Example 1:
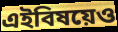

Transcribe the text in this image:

এইবিষয়েও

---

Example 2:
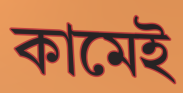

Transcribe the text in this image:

কামেই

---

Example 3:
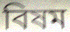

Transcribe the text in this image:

বিষম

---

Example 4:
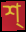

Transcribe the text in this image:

শ্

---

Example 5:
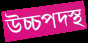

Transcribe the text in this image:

উচ্চপদস্থ